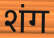
शंग